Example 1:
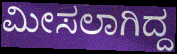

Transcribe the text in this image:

ಮೀಸಲಾಗಿದ್ದ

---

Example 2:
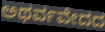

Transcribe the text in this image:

ಅಥರ್ವವೇದದ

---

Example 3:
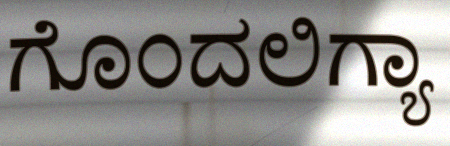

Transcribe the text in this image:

ಗೊಂದಲಿಗ್ಯಾ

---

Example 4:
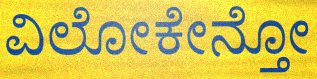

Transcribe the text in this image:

ವಿಲೋಕೇನ್ತೋ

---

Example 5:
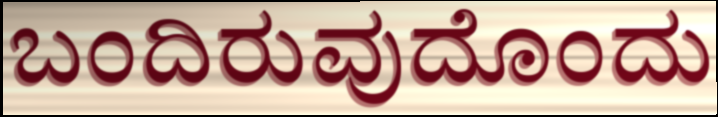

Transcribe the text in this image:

ಬಂದಿರುವುದೊಂದು